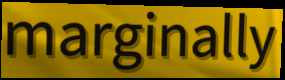
marginally